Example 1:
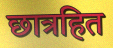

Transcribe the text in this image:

छात्रहित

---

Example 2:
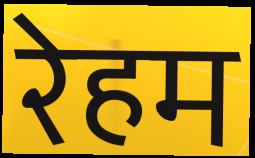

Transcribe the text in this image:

रेहम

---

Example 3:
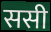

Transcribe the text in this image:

ससी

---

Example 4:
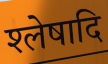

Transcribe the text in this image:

श्लेषादि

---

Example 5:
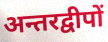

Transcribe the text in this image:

अन्तरद्वीपों